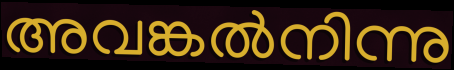
അവങ്കൽനിന്നു